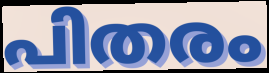
പിതരം